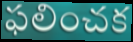
ఫలించక